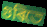
গুৰিতে